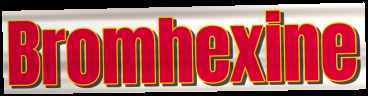
Bromhexine